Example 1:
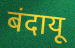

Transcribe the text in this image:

बंदायू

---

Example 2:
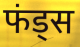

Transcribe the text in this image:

फंड्स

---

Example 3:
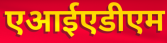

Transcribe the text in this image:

एआईएडीएम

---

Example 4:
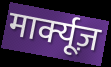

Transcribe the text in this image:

मार्क्यूज़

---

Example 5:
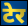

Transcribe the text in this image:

टेर